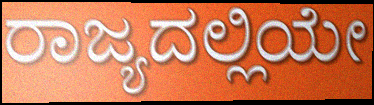
ರಾಜ್ಯದಲ್ಲಿಯೇ